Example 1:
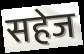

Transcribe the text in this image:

सहेज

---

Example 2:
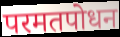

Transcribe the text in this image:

परमतपोधन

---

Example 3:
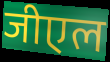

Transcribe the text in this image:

जीएल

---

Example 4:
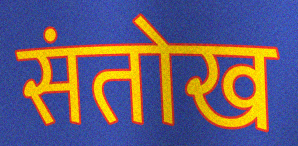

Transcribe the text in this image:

संतोख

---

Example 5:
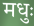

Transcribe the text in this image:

मधुः